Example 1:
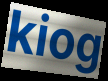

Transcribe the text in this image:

kiog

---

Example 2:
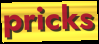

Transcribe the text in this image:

pricks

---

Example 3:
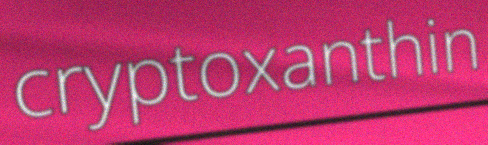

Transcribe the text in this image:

cryptoxanthin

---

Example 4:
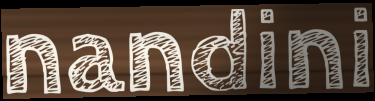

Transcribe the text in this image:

nandini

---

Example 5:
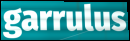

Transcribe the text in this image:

garrulus